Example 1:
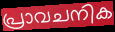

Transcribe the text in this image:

പ്രാവചനിക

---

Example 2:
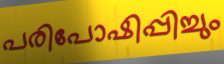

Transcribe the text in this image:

പരിപോഷിപ്പിച്ചും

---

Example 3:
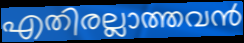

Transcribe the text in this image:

എതിരല്ലാത്തവൻ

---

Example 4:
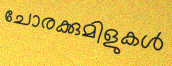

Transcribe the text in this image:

ചോരക്കുമിളുകൾ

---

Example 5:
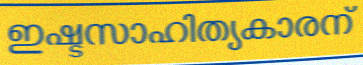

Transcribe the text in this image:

ഇഷ്ടസാഹിത്യകാരന്